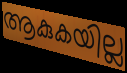
ആകുകയില്ല